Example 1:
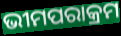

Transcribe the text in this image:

ଭୀମପରାକ୍ରମ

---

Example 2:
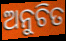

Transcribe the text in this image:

ଅନୁଚିତ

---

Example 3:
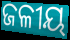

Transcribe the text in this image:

ଜଳୀୟ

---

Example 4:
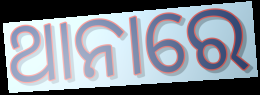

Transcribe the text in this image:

ଥାନାରେ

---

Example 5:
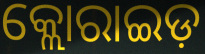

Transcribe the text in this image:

କ୍ଲୋରାଇଡ଼